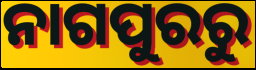
ନାଗପୁରରୁ